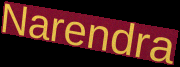
Narendra